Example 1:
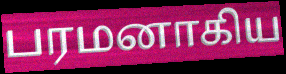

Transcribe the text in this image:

பரமனாகிய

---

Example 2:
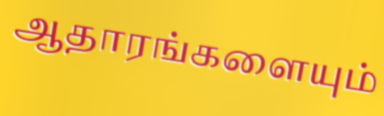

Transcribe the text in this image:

ஆதாரங்களையும்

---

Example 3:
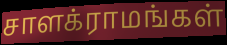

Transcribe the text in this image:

சாளக்ராமங்கள்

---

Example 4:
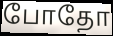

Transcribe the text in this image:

போதோ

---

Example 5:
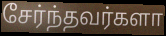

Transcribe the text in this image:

சேர்ந்தவர்களா